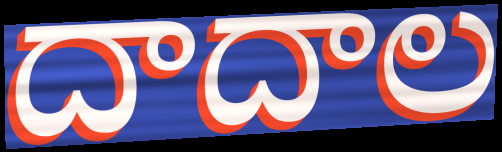
దాదాల